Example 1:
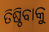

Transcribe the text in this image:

ତିଷ୍ଠିବାକୁ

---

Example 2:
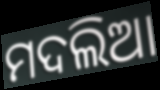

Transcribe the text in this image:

ମଦଲିଆ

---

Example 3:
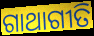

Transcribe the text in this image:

ଗାଥାଗୀତି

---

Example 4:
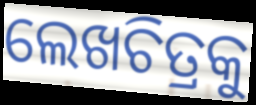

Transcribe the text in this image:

ଲେଖଚିତ୍ରକୁ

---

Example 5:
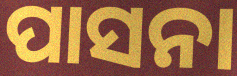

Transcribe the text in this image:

ପାସନା